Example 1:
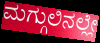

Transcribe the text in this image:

ಮಗ್ಗುಲಿನಲ್ಲೇ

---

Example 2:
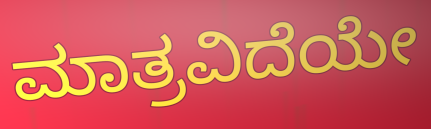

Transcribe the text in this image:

ಮಾತ್ರವಿದೆಯೇ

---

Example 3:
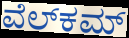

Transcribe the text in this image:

ವೆಲ್‍ಕಮ್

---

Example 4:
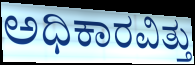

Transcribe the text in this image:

ಅಧಿಕಾರವಿತ್ತು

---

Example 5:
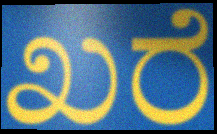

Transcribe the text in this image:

ಖರೆ